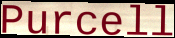
Purcell